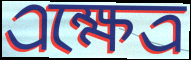
এক্ষেত্র